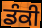
ਡੰਕੀ